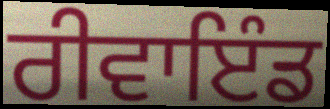
ਰੀਵਾਇੰਡ